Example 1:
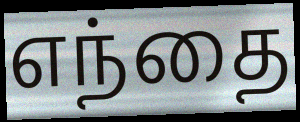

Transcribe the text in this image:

எந்தை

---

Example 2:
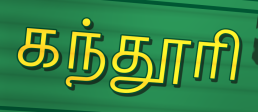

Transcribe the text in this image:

கந்தூரி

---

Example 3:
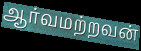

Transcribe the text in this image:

ஆர்வமற்றவன்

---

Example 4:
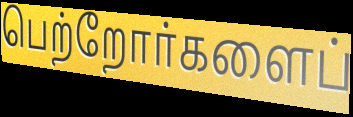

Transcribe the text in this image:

பெற்றோர்களைப்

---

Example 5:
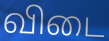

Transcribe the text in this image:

விடை